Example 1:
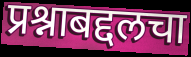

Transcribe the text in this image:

प्रश्नाबद्दलचा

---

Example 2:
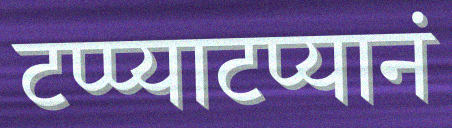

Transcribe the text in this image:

टप्प्याटप्यानं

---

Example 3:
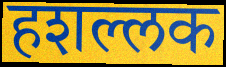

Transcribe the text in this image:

हशल्लक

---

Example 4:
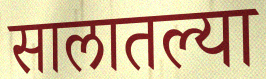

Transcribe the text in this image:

सालातल्या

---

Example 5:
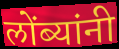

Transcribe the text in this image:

लोंब्यांनी